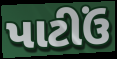
પાટીઉં